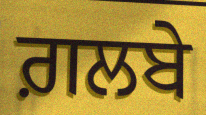
ਗ਼ਲਬੇ